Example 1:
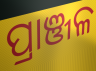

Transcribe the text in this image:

ପ୍ରାଞ୍ଜଳ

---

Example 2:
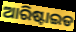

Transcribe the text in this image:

ଆରିଷ୍ଟାଇଡ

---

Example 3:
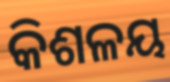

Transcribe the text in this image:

କିଶଳୟ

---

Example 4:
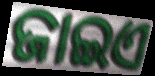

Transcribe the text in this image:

ଜାଇଏ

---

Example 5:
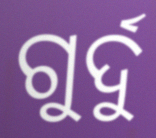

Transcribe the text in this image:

ଗୁର୍ଦୁ